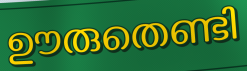
ഊരുതെണ്ടി